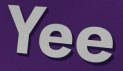
Yee